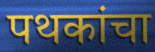
पथकांचा